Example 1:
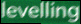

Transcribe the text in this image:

levelling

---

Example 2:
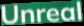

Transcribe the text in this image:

Unreal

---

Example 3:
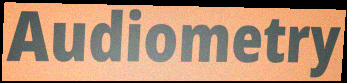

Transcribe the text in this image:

Audiometry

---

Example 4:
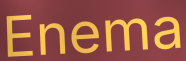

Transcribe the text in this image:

Enema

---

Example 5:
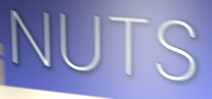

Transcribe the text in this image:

NUTS